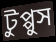
টুপ্পুস